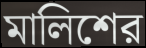
মালিশের